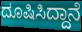
ದೂಷಿಸಿದ್ದಾನೆ